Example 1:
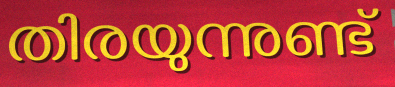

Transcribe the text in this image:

തിരയുന്നുണ്ട്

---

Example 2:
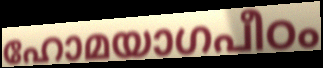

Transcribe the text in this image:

ഹോമയാഗപീഠം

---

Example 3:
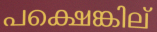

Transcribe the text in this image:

പക്ഷെങ്കില്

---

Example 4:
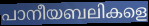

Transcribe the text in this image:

പാനീയബലികളെ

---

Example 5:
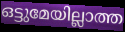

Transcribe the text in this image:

ഒട്ടുമേയില്ലാത്ത